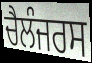
ਚੈਲੰਜਰਸ